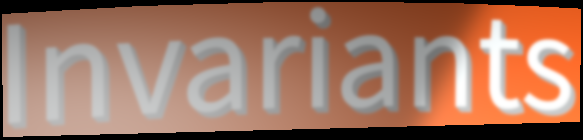
Invariants